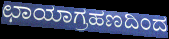
ಛಾಯಾಗ್ರಹಣದಿಂದ